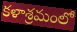
కళాశ్రమంలో